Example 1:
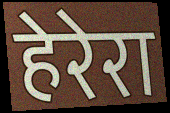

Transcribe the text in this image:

हेरेरा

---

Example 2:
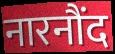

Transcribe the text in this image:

नारनौंद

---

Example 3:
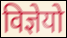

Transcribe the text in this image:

विज्ञेयो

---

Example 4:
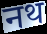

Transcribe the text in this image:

नथ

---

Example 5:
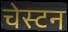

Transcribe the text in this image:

चेस्टन